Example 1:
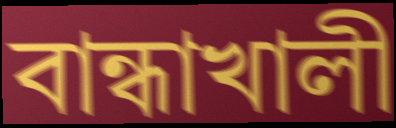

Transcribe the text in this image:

বান্ধাখালী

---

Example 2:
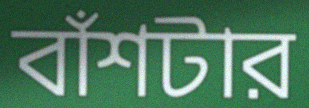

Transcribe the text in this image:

বাঁশটার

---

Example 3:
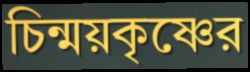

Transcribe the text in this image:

চিন্ময়কৃষ্ণের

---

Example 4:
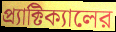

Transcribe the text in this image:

প্র্যাক্টিক্যালের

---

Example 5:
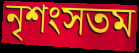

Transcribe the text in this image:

নৃশংসতম